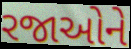
રજાઓને